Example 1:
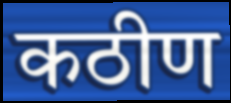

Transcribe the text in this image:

कठीण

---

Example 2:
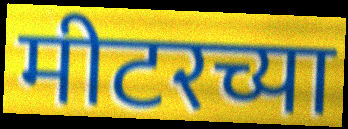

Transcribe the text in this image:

मीटरच्या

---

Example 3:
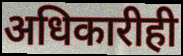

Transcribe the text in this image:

अधिकारीही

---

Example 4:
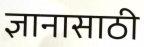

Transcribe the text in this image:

ज्ञानासाठी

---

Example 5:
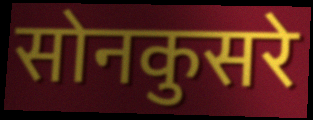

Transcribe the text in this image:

सोनकुसरे